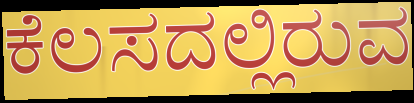
ಕೆಲಸದಲ್ಲಿರುವ